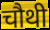
चौथी